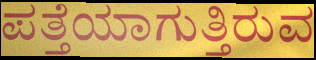
ಪತ್ತೆಯಾಗುತ್ತಿರುವ